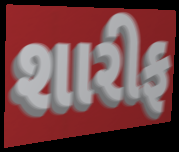
શારીફ